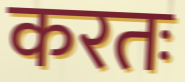
करतः